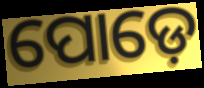
ପୋଡ଼େ